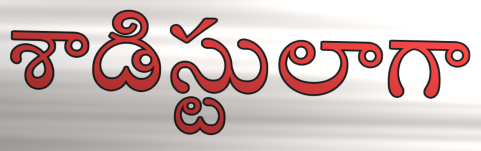
శాడిస్టులాగా